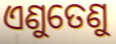
ଏଣୁତେଣୁ